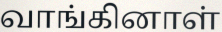
வாங்கினாள்